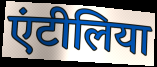
एंटीलिया